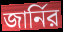
জার্নির